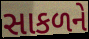
સાકળને